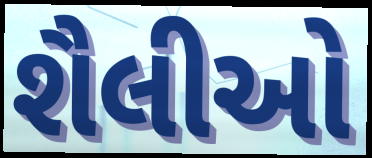
શૈલીઓ